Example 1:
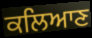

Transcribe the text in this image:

ਕਲਿਆਣ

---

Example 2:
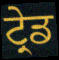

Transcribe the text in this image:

ਟ੍ਰੇਡ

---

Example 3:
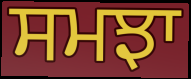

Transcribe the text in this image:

ਸਮਝਾ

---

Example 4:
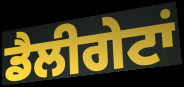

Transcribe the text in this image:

ਡੈਲੀਗੇਟਾਂ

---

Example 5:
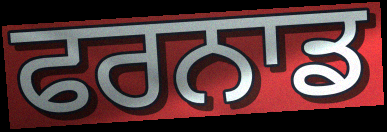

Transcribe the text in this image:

ਫਰਨਾਡ